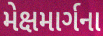
મેક્ષમાર્ગના